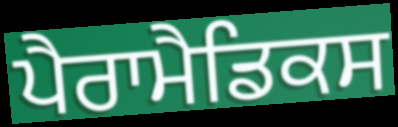
ਪੈਰਾਮੈਡਿਕਸ